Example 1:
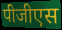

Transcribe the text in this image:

पीजीएस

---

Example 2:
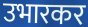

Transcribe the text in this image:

उभारकर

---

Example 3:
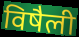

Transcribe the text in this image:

विषैली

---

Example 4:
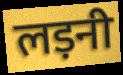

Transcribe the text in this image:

लड़नी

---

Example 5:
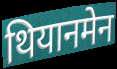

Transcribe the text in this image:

थियानमेन